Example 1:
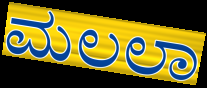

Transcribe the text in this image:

ಮಲಲಾ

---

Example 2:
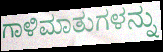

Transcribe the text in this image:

ಗಾಳಿಮಾತುಗಳನ್ನು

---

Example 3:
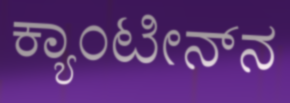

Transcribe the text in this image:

ಕ್ಯಾಂಟೀನ್‌ನ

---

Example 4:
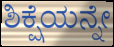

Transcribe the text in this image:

ಶಿಕ್ಷೆಯನ್ನೇ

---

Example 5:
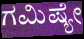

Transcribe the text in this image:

ಗಮಿಷ್ಯೇ